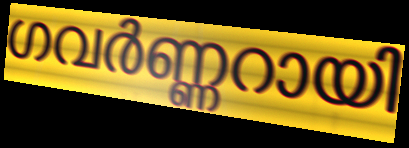
ഗവർണ്ണറായി